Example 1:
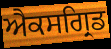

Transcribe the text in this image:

ਐਕਸਗ੍ਰਿਡ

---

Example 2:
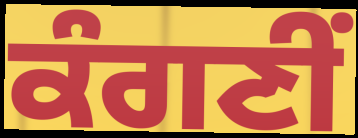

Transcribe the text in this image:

ਕੰਗਣੀਂ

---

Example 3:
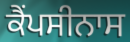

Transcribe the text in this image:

ਕੈਂਪਸੀਨਾਸ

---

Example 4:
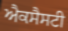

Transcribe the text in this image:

ਐਕਸੈਸਟੀ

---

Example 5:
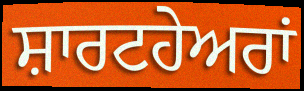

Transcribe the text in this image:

ਸ਼ਾਰਟਹੇਅਰਾਂ